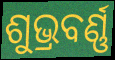
ଶୁଭ୍ରବର୍ଣ୍ଣ